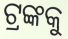
ଟ୍ରଙ୍କକୁ